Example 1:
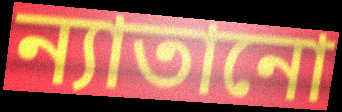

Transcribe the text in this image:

ন্যাতানো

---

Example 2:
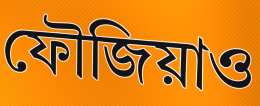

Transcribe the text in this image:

ফৌজিয়াও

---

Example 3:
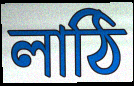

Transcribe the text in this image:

লাঠি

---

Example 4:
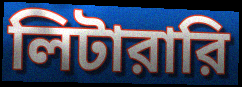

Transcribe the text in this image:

লিটারারি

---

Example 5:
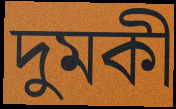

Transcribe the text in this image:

দুমকী